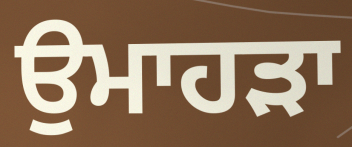
ਉਮਾਹੜਾ